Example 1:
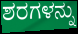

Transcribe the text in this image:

ಶರಗಳನ್ನು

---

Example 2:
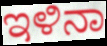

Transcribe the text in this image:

ಇಳಿನಾ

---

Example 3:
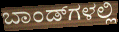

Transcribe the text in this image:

ಬಾಂಡ್‌ಗಳಲ್ಲಿ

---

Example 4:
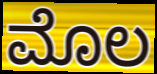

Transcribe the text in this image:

ಮೊಲ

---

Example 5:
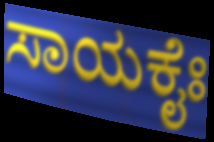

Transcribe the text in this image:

ಸಾಯಕೈಃ